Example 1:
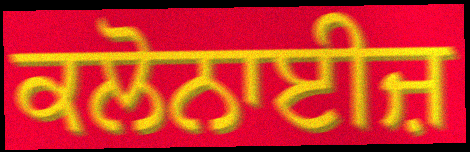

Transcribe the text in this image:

ਕਲੋਨਾਈਜ਼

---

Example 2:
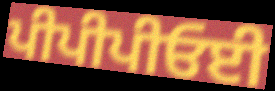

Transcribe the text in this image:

ਪੀਪੀਪੀਓਈ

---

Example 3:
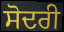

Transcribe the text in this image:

ਸੋਦਰੀ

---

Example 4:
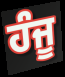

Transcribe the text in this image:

ਹੰਜੂ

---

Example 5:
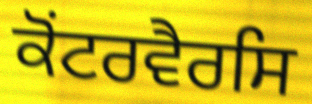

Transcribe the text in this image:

ਕੋਂਟਰਵੈਰਸਿ